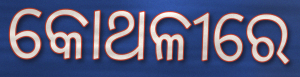
କୋଥଳୀରେ